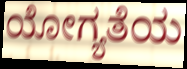
ಯೋಗ್ಯತೆಯ